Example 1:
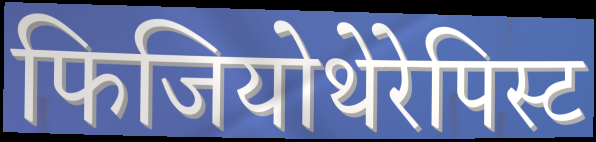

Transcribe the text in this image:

फिजियोथेरेपिस्ट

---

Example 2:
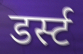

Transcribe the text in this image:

डर्स्ट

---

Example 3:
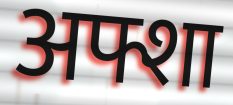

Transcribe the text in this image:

अफ्शा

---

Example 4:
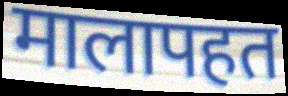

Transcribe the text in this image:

मालापहत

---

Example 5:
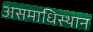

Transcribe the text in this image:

असमाधिस्थान